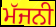
ਮੱਜਨੀ